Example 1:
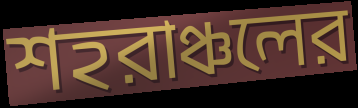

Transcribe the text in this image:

শহরাঞ্চলের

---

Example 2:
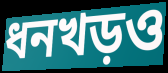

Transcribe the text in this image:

ধনখড়ও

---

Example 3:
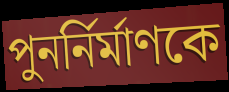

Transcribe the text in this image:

পুনর্নির্মাণকে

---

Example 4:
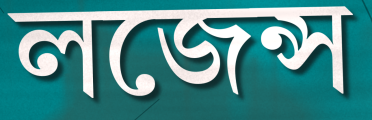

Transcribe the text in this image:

লজেন্স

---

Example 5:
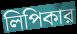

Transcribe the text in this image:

লিপিকার